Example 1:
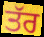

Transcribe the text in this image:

ਤੱਰ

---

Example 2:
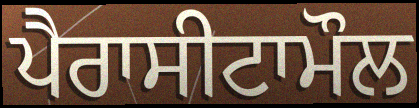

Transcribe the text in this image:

ਪੈਰਾਸੀਟਾਮੌਲ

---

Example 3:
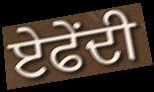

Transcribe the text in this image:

ਏਫੇਂਦੀ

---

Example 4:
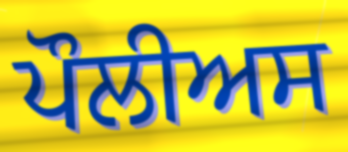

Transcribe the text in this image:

ਪੌਲੀਅਸ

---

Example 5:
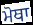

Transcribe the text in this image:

ਮੋਥਾ